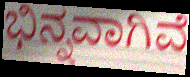
ಭಿನ್ನವಾಗಿವೆ